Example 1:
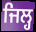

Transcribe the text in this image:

ਜਿਲ੍ਹ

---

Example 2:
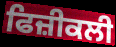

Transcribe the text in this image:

ਫਿਜ਼ੀਕਲੀ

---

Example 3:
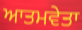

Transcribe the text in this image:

ਆਤਮਵੇਤਾ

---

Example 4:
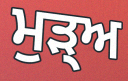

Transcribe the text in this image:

ਮੁਡ਼੍ਅ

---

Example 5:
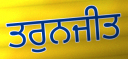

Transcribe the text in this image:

ਤਰੁਨਜੀਤ